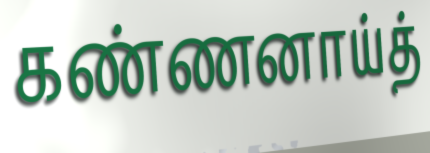
கண்ணனாய்த்